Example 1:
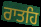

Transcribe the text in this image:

ਰਾਤਹਿ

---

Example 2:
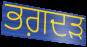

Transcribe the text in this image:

ਭਗ਼ਦੜ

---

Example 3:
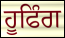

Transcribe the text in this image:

ਹੂਫਿੰਗ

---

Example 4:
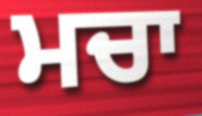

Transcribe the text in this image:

ਮਚਾ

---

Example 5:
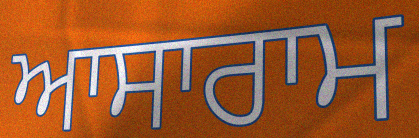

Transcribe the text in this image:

ਆਸਾਰਾਮ